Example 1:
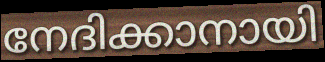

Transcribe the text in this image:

നേദിക്കാനായി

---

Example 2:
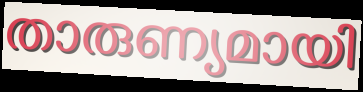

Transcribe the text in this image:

താരുണ്യമായി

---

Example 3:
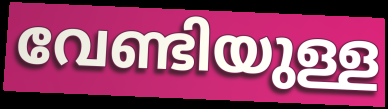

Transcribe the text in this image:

വേണ്ടിയുള്ള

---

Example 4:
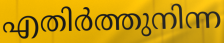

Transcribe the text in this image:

എതിർത്തുനിന്ന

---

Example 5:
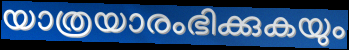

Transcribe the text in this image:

യാത്രയാരംഭിക്കുകയും